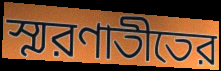
স্মরণাতীতের